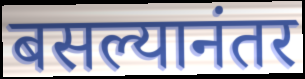
बसल्यानंतर